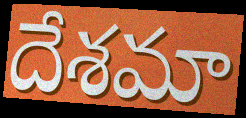
దేశమా